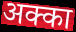
अक्का